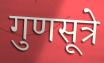
गुणसूत्रे